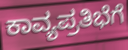
ಕಾವ್ಯಪ್ರತಿಭೆಗೆ